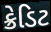
ક્રેડિટ